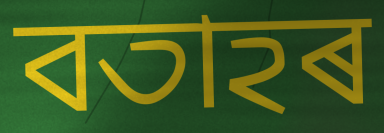
বতাহৰ